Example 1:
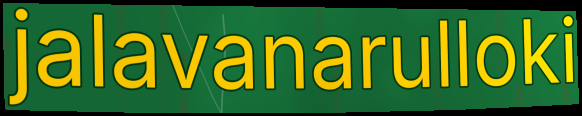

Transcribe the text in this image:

jalavanarulloki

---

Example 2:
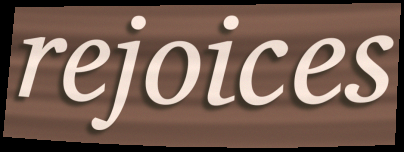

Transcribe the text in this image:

rejoices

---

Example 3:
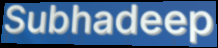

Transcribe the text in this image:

Subhadeep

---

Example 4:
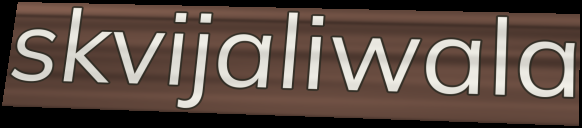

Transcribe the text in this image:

skvijaliwala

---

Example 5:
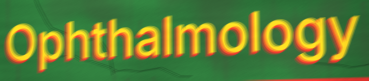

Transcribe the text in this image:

Ophthalmology